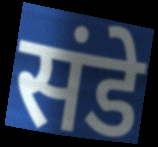
संडे